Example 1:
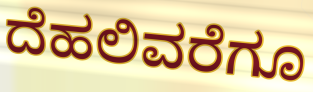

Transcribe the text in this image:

ದೆಹಲಿವರೆಗೂ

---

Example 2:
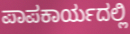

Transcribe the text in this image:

ಪಾಪಕಾರ್ಯದಲ್ಲಿ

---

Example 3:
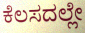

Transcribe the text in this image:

ಕೆಲಸದಲ್ಲೇ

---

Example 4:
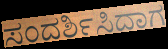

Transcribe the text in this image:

ಸಂದರ್ಶಿಸಿದಾಗ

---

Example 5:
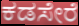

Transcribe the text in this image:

ಕಡಸೇರೆ